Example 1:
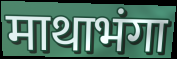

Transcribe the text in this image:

माथाभंगा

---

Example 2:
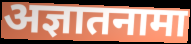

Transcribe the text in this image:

अज्ञातनामा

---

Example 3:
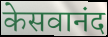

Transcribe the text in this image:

केसवानंद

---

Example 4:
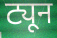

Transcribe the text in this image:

ट्यून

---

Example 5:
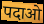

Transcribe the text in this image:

पदाओ